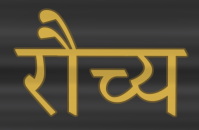
रौच्य